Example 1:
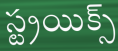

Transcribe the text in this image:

స్ట్రయిక్స్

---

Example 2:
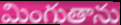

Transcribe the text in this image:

మింగుతాను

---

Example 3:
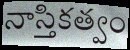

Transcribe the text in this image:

నాస్తికత్వం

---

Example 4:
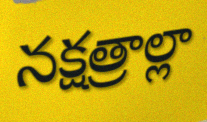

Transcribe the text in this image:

నక్షత్రాల్లా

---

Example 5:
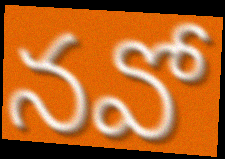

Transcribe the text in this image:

నవో